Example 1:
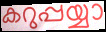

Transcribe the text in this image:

കറുപ്പയ്യാ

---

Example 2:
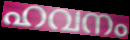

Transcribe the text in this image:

ഹവനം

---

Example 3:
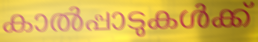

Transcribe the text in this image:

കാൽപ്പാടുകൾക്ക്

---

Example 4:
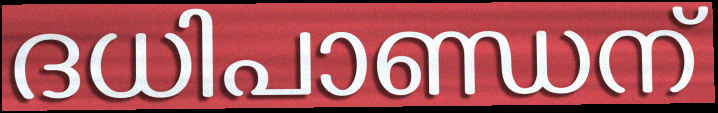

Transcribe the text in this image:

ദധിപാണ്ഡന്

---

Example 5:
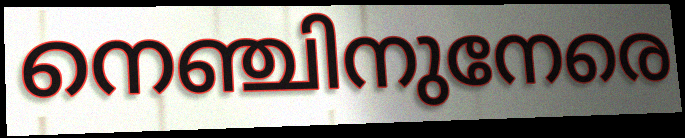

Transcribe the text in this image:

നെഞ്ചിനുനേരെ